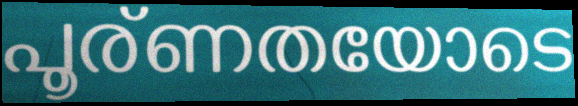
പൂര്ണതയോടെ